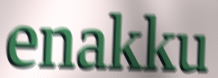
enakku